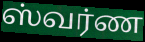
ஸ்வர்ண